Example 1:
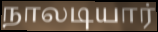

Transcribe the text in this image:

நாலடியார்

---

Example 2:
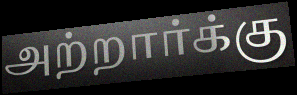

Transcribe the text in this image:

அற்றார்க்கு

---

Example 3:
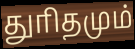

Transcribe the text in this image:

துரிதமும்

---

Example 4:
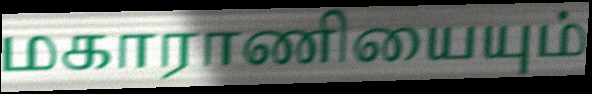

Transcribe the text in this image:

மகாராணியையும்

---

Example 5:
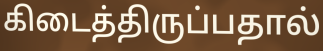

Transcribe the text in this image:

கிடைத்திருப்பதால்